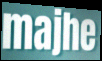
majhe